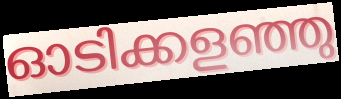
ഓടിക്കളഞ്ഞു